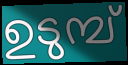
ഉടുമ്പ്